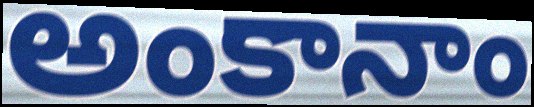
అంకానాం